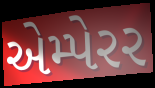
એમ્પેરર